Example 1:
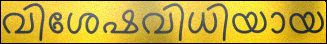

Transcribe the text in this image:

വിശേഷവിധിയായ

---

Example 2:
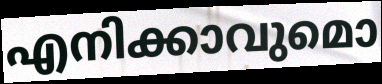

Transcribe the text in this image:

എനിക്കാവുമൊ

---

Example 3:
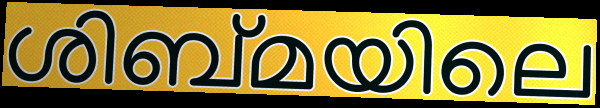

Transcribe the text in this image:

ശിബ്മയിലെ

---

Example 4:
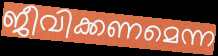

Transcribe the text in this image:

ജീവിക്കണമെന്ന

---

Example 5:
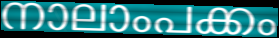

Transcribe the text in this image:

നാലാംപക്കം